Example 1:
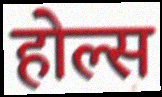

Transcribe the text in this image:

होल्स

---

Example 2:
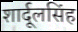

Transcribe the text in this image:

शार्दूलसिंह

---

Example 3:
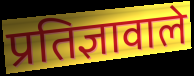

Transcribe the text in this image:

प्रतिज्ञावाले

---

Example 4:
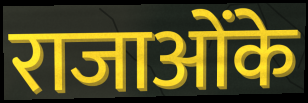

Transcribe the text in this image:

राजाओंके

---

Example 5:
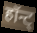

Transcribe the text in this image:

हॉन्ट्